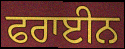
ਫਰਾਈਨ